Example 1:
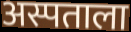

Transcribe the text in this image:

अस्पताला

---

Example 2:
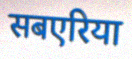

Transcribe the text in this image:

सबएरिया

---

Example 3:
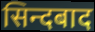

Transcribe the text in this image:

सिन्दबाद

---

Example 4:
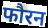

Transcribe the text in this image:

फौरन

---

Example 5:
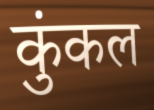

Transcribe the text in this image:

कुंकल